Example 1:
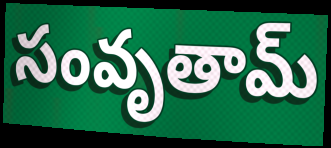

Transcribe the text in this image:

సంవృతామ్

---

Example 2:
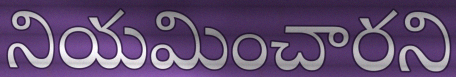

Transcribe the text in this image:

నియమించారని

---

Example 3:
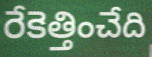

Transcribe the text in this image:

రేకెత్తించేది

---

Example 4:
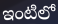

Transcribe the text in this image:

ఇంటిలో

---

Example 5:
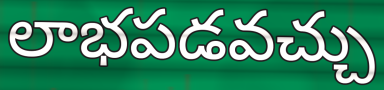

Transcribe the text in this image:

లాభపడవచ్చు